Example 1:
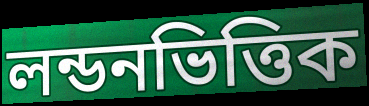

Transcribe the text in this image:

লন্ডনভিত্তিক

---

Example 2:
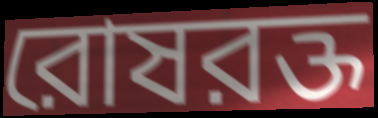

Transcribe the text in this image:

রোষরক্ত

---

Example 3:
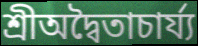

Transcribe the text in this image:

শ্রীঅদ্বৈতাচার্য্য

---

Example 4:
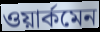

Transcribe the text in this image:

ওয়ার্কমেন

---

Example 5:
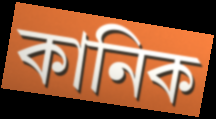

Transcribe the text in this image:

কানিক